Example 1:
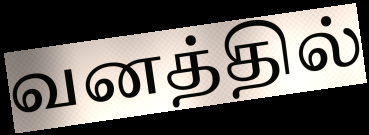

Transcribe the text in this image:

வனத்தில்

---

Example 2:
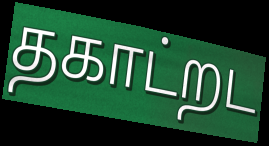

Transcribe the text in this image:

தகாட்றட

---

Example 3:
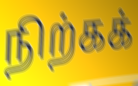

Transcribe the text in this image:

நிற்கக்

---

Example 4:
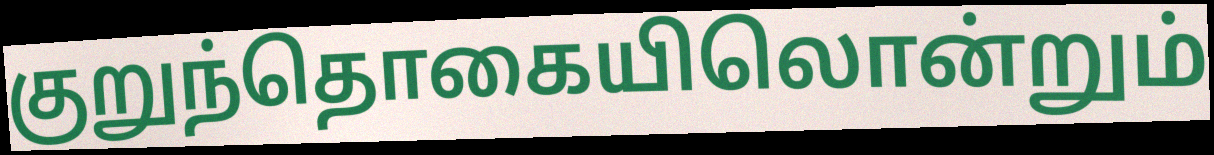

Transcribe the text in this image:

குறுந்தொகையிலொன்றும்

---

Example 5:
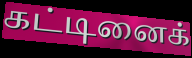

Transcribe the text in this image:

கட்டினைக்